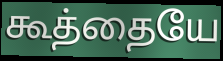
கூத்தையே